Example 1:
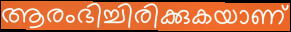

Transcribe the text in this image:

ആരംഭിച്ചിരിക്കുകയാണ്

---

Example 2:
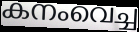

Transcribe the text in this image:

കനംവെച്ച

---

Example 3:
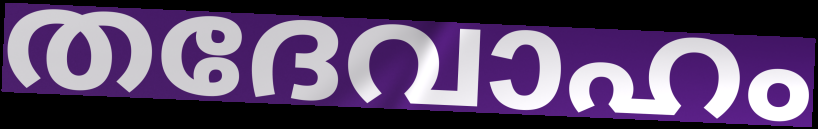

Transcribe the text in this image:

തദേവാഹം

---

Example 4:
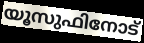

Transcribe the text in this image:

യൂസുഫിനോട്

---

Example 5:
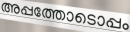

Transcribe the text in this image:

അപ്പത്തോടൊപ്പം